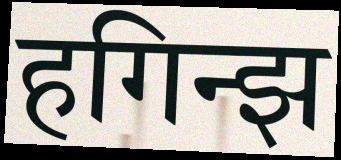
हगिन्झ